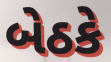
બેઠકે